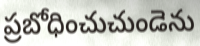
ప్రబోధించుచుండెను